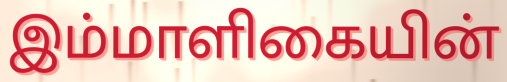
இம்மாளிகையின்